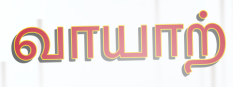
வாயாற்